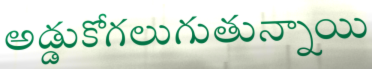
అడ్డుకోగలుగుతున్నాయి